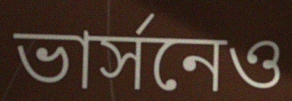
ভার্সনেও